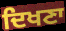
ਦਿਖਣਾ